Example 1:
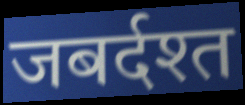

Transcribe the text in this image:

जबर्दश्त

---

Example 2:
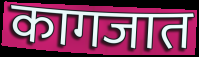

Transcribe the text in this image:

कागजात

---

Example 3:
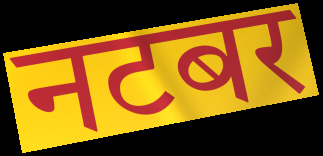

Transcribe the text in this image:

नटबर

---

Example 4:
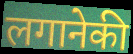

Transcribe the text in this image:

लगानेकी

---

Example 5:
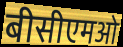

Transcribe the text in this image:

बीसीएमओ